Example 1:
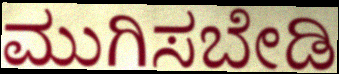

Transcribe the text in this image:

ಮುಗಿಸಬೇಡಿ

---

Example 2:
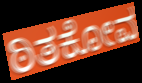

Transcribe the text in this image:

ಠಿತಕೋವ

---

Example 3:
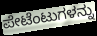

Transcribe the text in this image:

ಪೇಟೆಂಟುಗಳನ್ನು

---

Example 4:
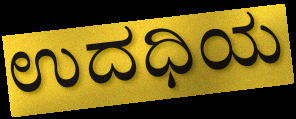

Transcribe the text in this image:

ಉದಧಿಯ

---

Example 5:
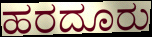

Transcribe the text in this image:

ಹರದೂರು